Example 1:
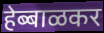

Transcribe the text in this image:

हेब्बाळकर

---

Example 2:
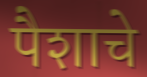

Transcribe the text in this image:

पैशाचे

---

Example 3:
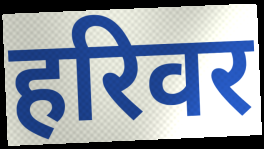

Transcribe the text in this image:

हरिवर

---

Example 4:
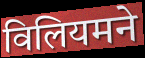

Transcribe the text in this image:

विलियमने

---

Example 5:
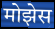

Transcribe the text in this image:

मोझेस